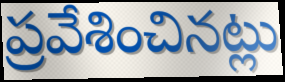
ప్రవేశించినట్లు